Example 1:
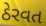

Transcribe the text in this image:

ઠેરવત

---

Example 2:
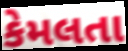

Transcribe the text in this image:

કેમલતા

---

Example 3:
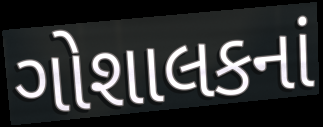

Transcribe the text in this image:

ગોશાલકનાં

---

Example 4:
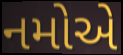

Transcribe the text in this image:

નમોએ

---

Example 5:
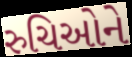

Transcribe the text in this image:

રુચિઓને